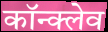
कॉन्क्लेव